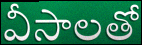
వీసాలతో